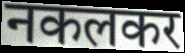
नकलकर